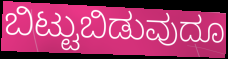
ಬಿಟ್ಟುಬಿಡುವುದೂ